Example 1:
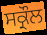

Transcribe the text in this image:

ਸਕ੍ਰੌਲ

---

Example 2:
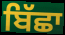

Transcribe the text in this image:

ਬਿੱਛਾ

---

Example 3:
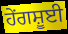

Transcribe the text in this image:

ਹੇਂਗਸ਼ੂਈ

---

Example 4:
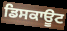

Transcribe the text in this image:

ਡਿਸਕਾਊਟ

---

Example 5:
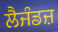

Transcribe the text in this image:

ਲੈਜੰਡਜ਼